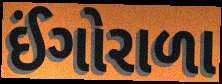
ઈંગોરાળા